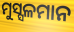
ମୁସ୍ସଳମାନ